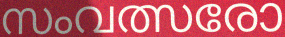
സംവത്സരോ